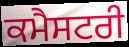
ਕਮੈਸਟਰੀ